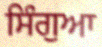
ਸਿੰਗੁਆ